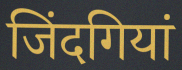
जिंदगियां